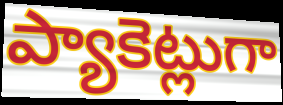
ప్యాకెట్లుగా